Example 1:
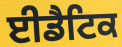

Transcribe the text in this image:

ਈਡੈਟਿਕ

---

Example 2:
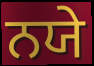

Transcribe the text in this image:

ਨਯੇ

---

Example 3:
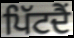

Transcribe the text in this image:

ਪਿੱਟਦੈਂ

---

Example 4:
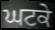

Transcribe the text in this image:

ਘਟਕੇ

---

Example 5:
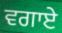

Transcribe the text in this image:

ਵਗਾਏ